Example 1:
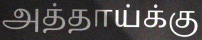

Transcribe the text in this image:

அத்தாய்க்கு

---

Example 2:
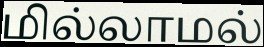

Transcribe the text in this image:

மில்லாமல்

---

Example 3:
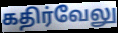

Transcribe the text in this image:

கதிர்வேலு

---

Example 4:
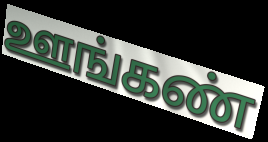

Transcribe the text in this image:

ஊங்கண்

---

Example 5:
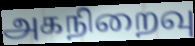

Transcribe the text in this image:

அகநிறைவு